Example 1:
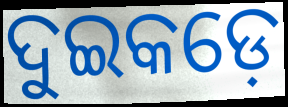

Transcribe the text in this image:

ଦୁଇକଡ଼େ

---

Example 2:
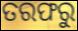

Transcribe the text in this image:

ତରଫରୁ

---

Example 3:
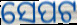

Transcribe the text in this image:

ସେପଟ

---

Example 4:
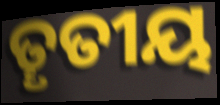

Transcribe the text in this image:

ତୄତୀୟ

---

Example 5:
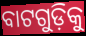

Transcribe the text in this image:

ବାଟଗୁଡ଼ିକୁ